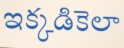
ఇక్కడికెలా